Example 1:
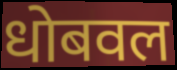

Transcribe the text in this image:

धोबवल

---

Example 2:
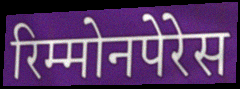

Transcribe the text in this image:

रिम्मोनपेरेस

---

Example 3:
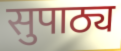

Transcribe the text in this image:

सुपाठ्य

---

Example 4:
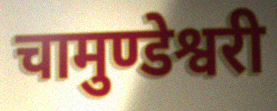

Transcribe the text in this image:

चामुण्डेश्वरी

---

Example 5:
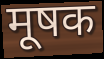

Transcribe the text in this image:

मूषक